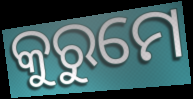
କୁରୁମେ